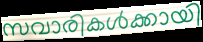
സവാരികൾക്കായി